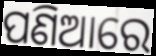
ପଣିଆରେ